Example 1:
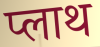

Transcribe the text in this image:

प्लाथ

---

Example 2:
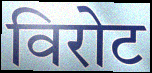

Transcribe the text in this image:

विरोट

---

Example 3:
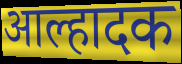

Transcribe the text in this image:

आल्हादक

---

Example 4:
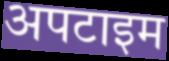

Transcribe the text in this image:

अपटाइम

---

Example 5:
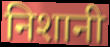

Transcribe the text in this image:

निशानी